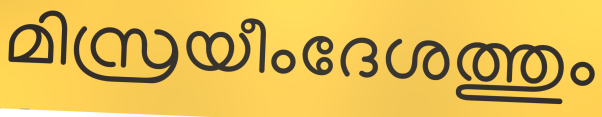
മിസ്രയീംദേശത്തും